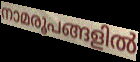
നാമരൂപങ്ങളിൽ